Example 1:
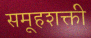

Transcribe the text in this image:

समूहशक्ती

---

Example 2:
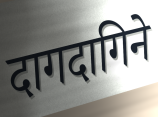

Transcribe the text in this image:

दागदागिने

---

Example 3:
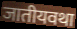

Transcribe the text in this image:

जातीयवथा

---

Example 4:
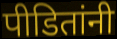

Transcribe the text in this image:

पीडितांनी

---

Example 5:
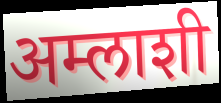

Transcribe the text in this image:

अम्लाशी